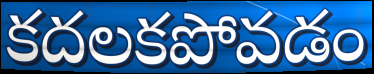
కదలకపోవడం